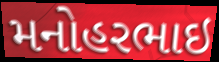
મનોહરભાઇ